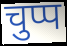
चुप्प